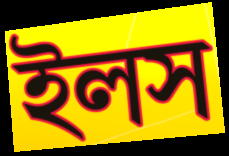
ইলস